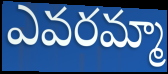
ఎవరమ్మా